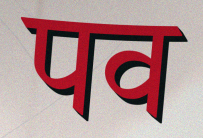
पव